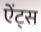
ऐंट्स